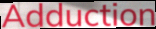
Adduction